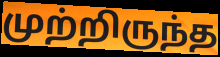
முற்றிருந்த